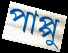
পাপ্পু